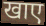
खाए